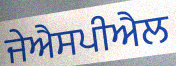
ਜੇਐਸਪੀਐਲ